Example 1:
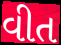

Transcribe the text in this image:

વીત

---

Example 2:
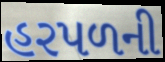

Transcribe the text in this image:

હરપળની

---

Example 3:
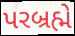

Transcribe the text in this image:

પરબ્રહ્મે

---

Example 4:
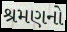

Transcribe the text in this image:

શ્રમણનો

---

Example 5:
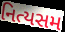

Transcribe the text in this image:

નિત્યસમ